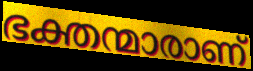
ഭക്തന്മാരാണ്